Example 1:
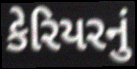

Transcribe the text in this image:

કેરિયરનું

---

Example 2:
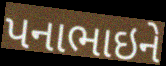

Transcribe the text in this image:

પનાભાઇને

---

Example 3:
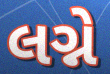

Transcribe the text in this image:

લગ્ને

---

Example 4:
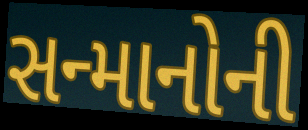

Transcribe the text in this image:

સન્માનોની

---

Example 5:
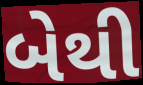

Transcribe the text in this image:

બેથી